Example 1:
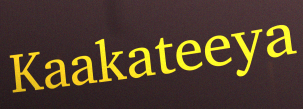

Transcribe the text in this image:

Kaakateeya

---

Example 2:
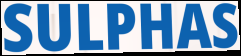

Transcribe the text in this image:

SULPHAS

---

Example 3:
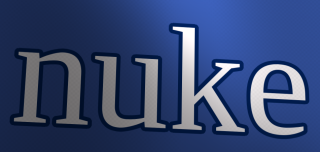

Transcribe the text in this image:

nuke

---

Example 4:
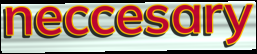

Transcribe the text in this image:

neccesary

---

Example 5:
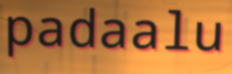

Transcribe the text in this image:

padaalu